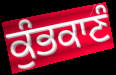
ਕੁੰਭਕਾਣੰ